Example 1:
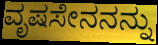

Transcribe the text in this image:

ವೃಷಸೇನನನ್ನು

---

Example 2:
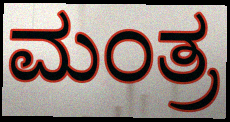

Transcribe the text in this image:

ಮಂತ್ರ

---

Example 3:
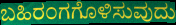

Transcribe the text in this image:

ಬಹಿರಂಗಗೊಳಿಸುವುದು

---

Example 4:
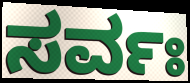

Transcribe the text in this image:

ಸರ್ವಃ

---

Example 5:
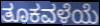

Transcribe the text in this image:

ತೂಕವಳೆಯೆ